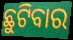
ଛୁଟିବାର